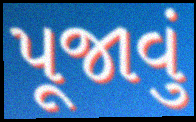
પૂજાવું